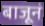
बाजूनं